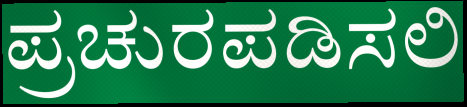
ಪ್ರಚುರಪಡಿಸಲಿ